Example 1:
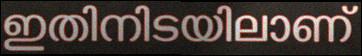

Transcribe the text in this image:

ഇതിനിടയിലാണ്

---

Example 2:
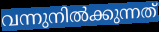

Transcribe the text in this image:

വന്നുനിൽക്കുന്നത്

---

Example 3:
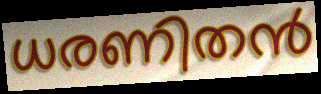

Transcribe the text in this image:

ധരണിതൻ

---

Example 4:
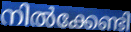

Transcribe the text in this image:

നിൽക്കേണ്ടി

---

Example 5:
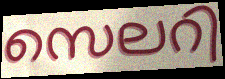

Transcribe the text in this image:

സെലറി